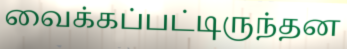
வைக்கப்பட்டிருந்தன